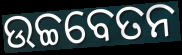
ଉଚ୍ଚବେତନ